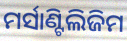
ମର୍ସାଣ୍ଟିଲିଜିମ